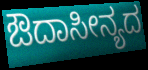
ಔದಾಸೀನ್ಯದ